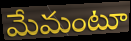
మేమంటూ